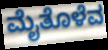
ಮೈತೊಳೆವ